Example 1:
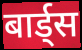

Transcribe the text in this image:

बार्ड्स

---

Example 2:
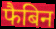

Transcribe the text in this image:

फैबिन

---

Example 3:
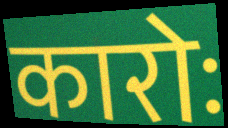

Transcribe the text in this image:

कारोः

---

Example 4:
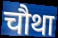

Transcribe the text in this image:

चौथा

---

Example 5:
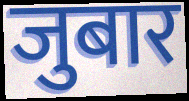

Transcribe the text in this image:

जुबार